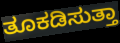
ತೂಕಡಿಸುತ್ತಾ